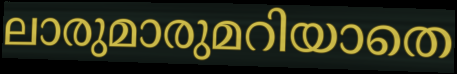
ലാരുമാരുമറിയാതെ